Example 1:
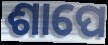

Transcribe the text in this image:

ଶାପେ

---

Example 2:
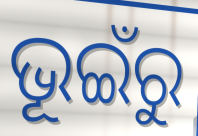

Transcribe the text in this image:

ଭୂଇଁରୁ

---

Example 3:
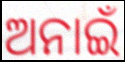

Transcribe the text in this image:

ଅନାଇଁ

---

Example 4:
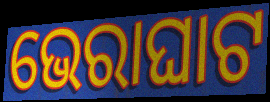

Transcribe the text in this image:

ଭେରାଘାଟ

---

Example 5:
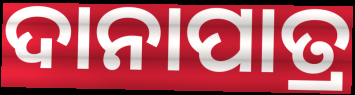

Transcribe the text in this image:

ଦାନାପାତ୍ର